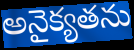
అనైక్యతను